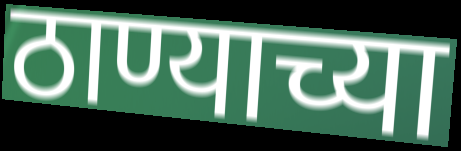
ठाण्याच्या